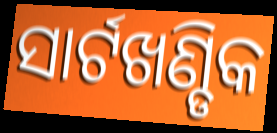
ସାର୍ଟଖଣ୍ଡିକ